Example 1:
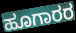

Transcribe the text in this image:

ಹೂಗಾರರ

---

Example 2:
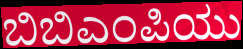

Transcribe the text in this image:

ಬಿಬಿಎಂಪಿಯು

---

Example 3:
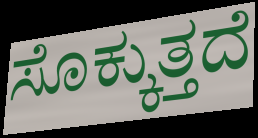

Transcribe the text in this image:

ಸೊಕ್ಕುತ್ತದೆ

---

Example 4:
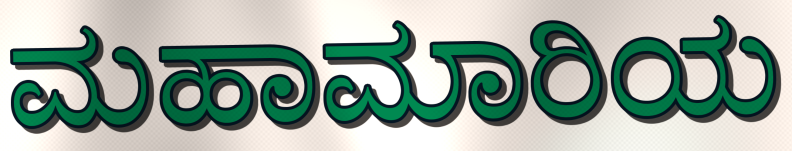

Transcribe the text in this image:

ಮಹಾಮಾರಿಯ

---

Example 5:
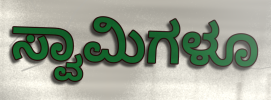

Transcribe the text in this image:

ಸ್ವಾಮಿಗಳೂ